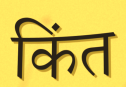
किंत